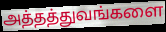
அத்தத்துவங்களை